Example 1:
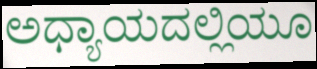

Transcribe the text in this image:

ಅಧ್ಯಾಯದಲ್ಲಿಯೂ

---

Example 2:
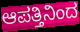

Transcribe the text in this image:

ಆಪತ್ತಿನಿಂದ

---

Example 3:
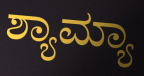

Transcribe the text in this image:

ಶ್ಯಾಮ್ಯಾ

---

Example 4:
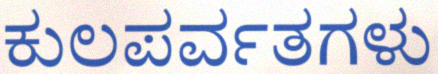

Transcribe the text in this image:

ಕುಲಪರ್ವತಗಳು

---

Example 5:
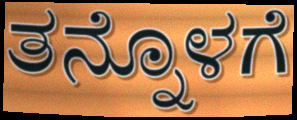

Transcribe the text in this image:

ತನ್ನೊಳಗೆ